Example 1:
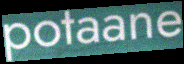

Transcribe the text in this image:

potaane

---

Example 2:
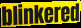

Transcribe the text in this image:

blinkered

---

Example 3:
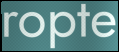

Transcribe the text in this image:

ropte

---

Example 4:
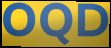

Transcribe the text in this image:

OQD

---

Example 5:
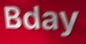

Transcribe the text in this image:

Bday